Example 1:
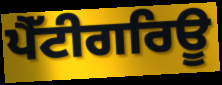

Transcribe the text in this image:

ਪੈੱਟੀਗਰਿਊ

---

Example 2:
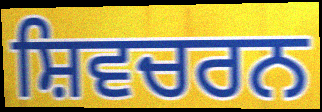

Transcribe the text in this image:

ਸ਼ਿਵਚਰਨ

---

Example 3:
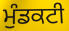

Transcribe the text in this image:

ਮੁੰਡਕਟੀ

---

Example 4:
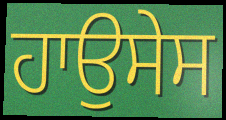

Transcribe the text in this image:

ਹਾਉਸੇਸ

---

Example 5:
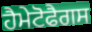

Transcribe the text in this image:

ਹੈਮੇਟੋਫੈਗਸ